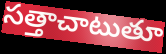
సత్తాచాటుతూ